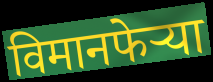
विमानफेऱ्या